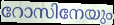
റോസിനേയും